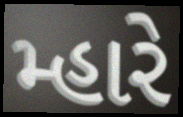
મ્હારે